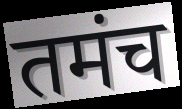
तमंच